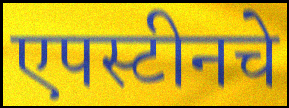
एपस्टीनचे